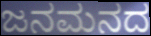
ಜನಮನದ